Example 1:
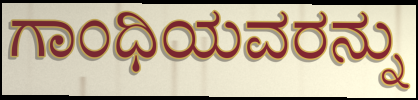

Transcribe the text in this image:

ಗಾಂಧಿಯವರನ್ನು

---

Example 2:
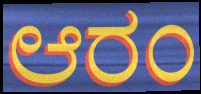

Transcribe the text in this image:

ಆರಂ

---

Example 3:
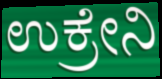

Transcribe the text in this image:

ಉಕ್ರೇನಿ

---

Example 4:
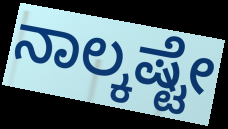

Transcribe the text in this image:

ನಾಲ್ಕಷ್ಟೇ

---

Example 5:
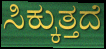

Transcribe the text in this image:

ಸಿಕ್ಕುತ್ತದೆ